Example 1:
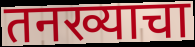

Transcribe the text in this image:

तनख्याचा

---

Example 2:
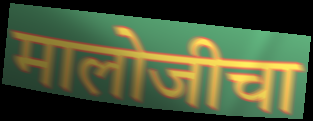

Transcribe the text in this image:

मालोजीचा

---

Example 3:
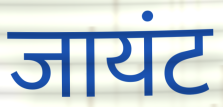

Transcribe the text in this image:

जायंट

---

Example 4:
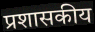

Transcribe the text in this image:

प्रशासकीय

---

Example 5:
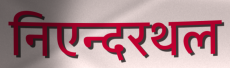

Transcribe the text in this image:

निएन्दरथल